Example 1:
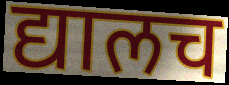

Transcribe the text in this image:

द्यालच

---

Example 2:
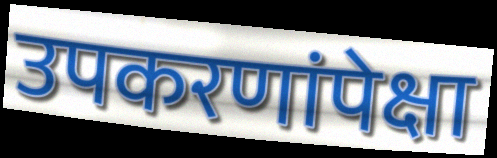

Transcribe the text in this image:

उपकरणांपेक्षा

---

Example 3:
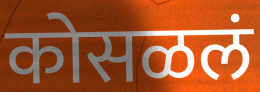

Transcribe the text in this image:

कोसळलं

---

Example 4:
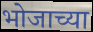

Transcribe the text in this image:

भोजाच्या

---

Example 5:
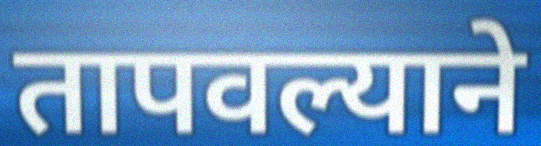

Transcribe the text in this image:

तापवल्याने